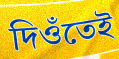
দিওঁতেই